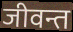
जीवन्त